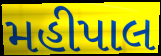
મહીપાલ